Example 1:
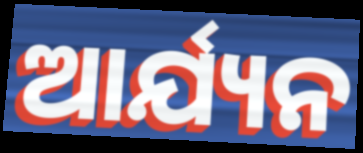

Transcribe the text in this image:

ଆର୍ଯ୍ୟନ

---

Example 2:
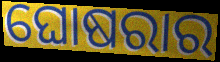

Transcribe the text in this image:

ଘୋଷରାର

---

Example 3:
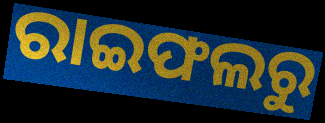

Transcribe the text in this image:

ରାଇଫଲରୁ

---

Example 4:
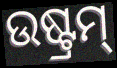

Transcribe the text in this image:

ଉଷ୍ଟ୍ରମ୍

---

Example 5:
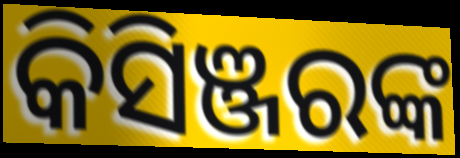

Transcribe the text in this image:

କିସିଞ୍ଜରଙ୍କ